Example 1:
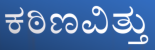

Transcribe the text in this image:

ಕಠಿಣವಿತ್ತು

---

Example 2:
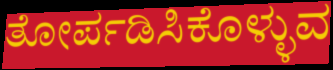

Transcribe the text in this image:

ತೋರ್ಪಡಿಸಿಕೊಳ್ಳುವ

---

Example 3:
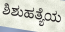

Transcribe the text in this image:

ಶಿಶುಹತ್ಯೆಯ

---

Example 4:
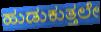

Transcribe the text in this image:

ಹುಡುಕುತ್ತಲೇ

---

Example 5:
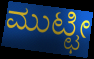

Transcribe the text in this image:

ಮುಟ್ಟೀ